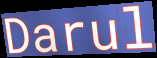
Darul